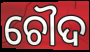
ଚୌଦ